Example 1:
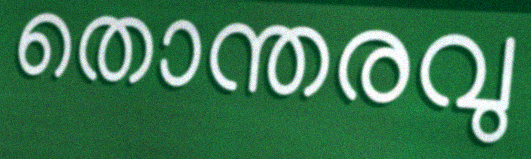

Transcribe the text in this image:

തൊന്തരവു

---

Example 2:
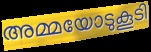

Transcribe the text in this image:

അമ്മയോടുകൂടി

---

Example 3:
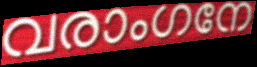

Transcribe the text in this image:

വരാംഗനേ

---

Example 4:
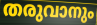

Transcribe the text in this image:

തരുവാനും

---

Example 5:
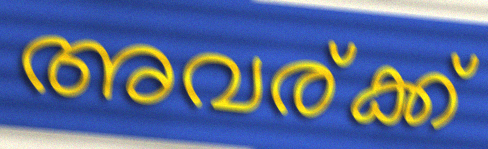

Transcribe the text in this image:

അവര്ക്ക്